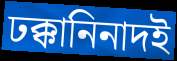
ঢক্কানিনাদই